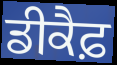
ਡੀਕੈਫ਼